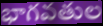
భాగవతుల